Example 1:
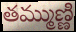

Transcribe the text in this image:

తమ్ముణ్ణి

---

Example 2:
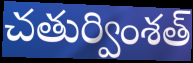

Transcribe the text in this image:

చతుర్వింశత్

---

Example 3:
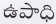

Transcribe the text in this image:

ఉపాధి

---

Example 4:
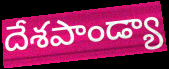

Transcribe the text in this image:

దేశపాండ్యా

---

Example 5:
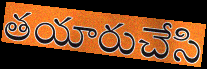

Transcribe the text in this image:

తయారుచేసి